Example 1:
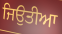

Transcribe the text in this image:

ਜਿਉਤੀਆ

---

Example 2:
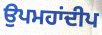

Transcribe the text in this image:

ਉਪਮਹਾਂਦੀਪ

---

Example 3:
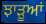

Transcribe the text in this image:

ਝਾੜੂਆਂ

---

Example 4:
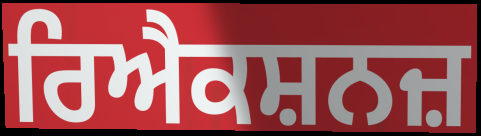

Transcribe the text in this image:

ਰਿਐਕਸ਼ਨਜ਼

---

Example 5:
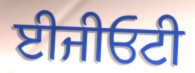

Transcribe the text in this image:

ਈਜੀਓਟੀ